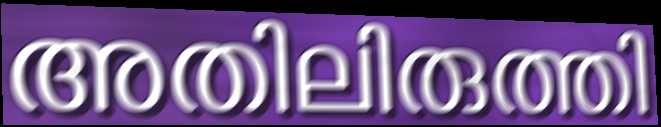
അതിലിരുത്തി